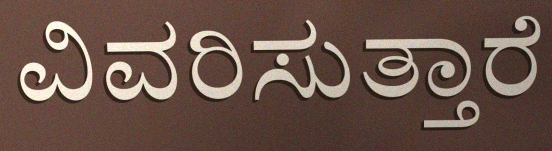
ವಿವರಿಸುತ್ತಾರೆ